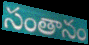
సంతానం